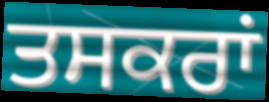
ਤਸਕਰਾਂ